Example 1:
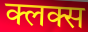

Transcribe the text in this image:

क्लक्स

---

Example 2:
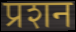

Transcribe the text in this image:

प्रशन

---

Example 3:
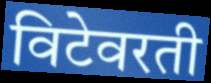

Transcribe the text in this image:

विटेवरती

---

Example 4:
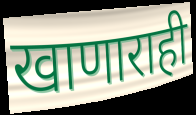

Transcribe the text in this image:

खाणाराही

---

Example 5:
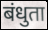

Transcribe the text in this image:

बंधुता